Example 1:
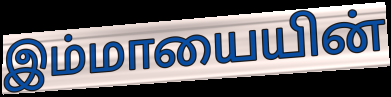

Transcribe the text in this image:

இம்மாயையின்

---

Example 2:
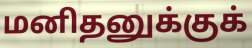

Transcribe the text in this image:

மனிதனுக்குக்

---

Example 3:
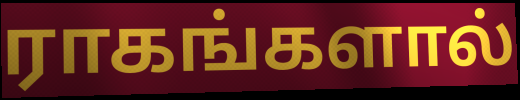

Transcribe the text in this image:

ராகங்களால்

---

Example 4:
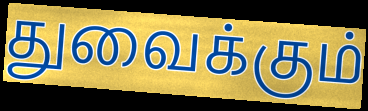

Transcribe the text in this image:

துவைக்கும்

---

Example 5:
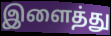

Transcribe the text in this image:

இளைத்து